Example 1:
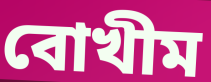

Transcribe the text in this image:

বোখীম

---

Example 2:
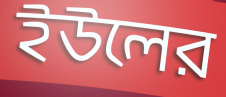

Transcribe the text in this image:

ইউলের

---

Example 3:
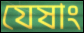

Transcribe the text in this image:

যেষাং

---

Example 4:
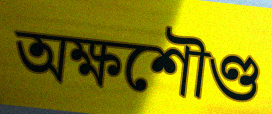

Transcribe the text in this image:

অক্ষশৌণ্ড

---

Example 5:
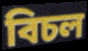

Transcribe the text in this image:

বিচল